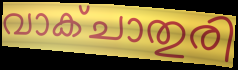
വാക്ചാതുരി